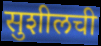
सुशीलची